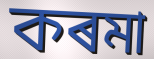
কৰমা